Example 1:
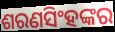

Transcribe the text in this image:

ଶରଣସିଂହଙ୍କର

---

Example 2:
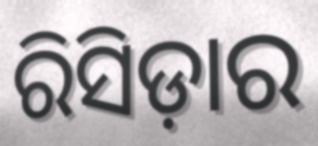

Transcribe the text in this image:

ରିସିଡ଼ାର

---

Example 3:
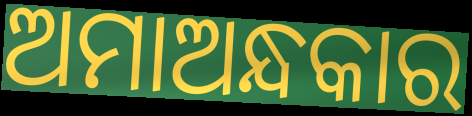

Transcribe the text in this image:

ଅମାଅନ୍ଧକାର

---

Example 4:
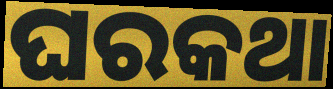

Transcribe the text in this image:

ଘରକଥା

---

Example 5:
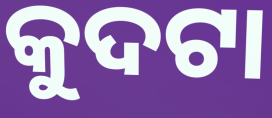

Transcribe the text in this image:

କୁଦଟା